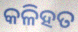
କଳିହତ